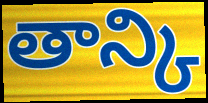
తాన్కి